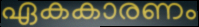
ഏകകാരണം